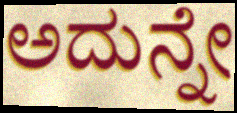
ಅದುನ್ನೇ